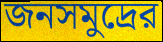
জনসমুদ্রের